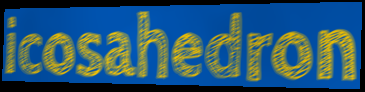
icosahedron